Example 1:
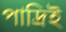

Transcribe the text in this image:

পাদ্রিই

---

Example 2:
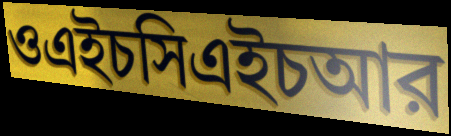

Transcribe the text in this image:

ওএইচসিএইচআর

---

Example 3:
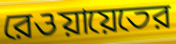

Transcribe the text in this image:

রেওয়ায়েতের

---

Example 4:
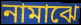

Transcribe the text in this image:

নামাঝে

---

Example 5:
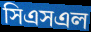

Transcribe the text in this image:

সিএসএল